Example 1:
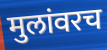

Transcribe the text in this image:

मुलांवरच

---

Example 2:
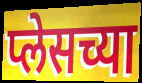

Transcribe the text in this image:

प्लेसच्या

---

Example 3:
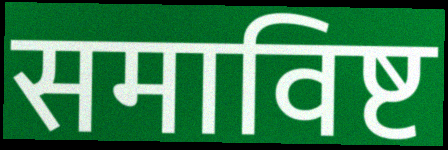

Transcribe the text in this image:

समाविष्ट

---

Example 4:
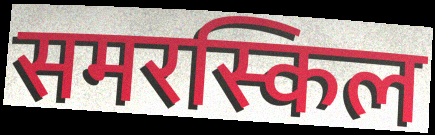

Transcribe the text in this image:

समरस्किल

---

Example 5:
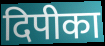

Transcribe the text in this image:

दिपीका